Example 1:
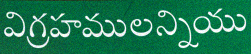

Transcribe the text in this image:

విగ్రహములన్నియు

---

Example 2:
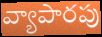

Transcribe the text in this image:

వ్యాపారపు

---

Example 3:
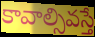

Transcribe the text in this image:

కావాల్సివస్తే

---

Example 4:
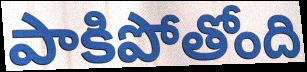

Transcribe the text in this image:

పాకిపోతోంది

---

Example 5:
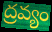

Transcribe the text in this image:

ద్రవ్యం